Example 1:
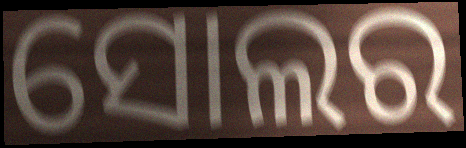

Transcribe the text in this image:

ସୋଲର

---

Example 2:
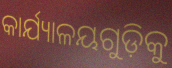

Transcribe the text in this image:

କାର୍ଯ୍ୟାଳୟଗୁଡ଼ିକୁ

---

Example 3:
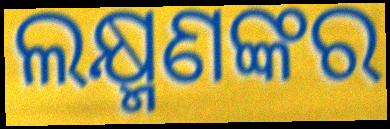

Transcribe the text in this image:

ଲକ୍ଷ୍ମଣଙ୍କର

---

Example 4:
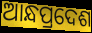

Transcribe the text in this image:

ଆନ୍ଧପ୍ରଦେଶ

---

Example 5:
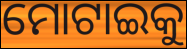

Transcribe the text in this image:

ମୋଟାଇକୁ